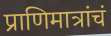
प्राणिमात्रांचं